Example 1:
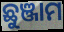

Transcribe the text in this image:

ଛୁଞ୍ଜାମ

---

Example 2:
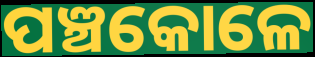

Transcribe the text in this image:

ପଞ୍ଚକୋଳେ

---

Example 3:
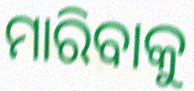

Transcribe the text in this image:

ମାରିବାକୁ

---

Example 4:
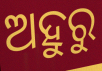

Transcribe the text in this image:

ଅହୁରୁ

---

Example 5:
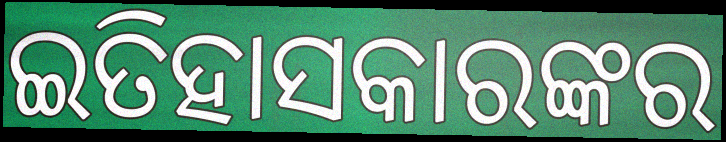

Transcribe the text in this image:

ଇତିହାସକାରଙ୍କର